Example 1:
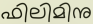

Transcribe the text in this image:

ഫിലിമിനു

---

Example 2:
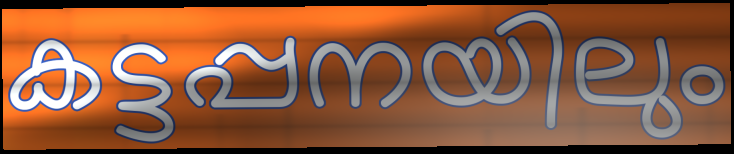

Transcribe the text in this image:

കട്ടപ്പനയിലും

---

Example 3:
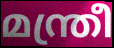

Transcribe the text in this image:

മന്ത്രീ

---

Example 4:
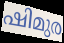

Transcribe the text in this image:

ഷിമുര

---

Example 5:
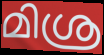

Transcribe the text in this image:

മിശ്ര